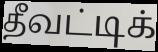
தீவட்டிக்